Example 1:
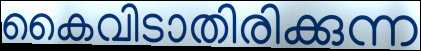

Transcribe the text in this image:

കൈവിടാതിരിക്കുന്ന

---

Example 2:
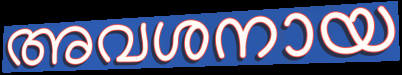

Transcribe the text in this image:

അവശനായ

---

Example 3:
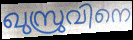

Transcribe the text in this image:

ഖുസ്രുവിനെ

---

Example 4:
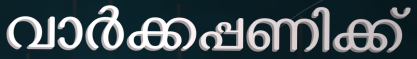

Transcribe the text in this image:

വാർക്കപ്പണിക്ക്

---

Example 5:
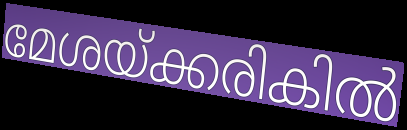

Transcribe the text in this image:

മേശയ്ക്കരികിൽ